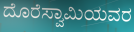
ದೊರೆಸ್ವಾಮಿಯವರ